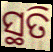
ସ୍ଥତି